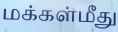
மக்கள்மீது